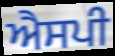
ਐਸਪੀ